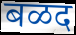
बळद